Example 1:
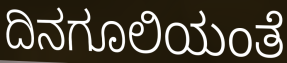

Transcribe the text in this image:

ದಿನಗೂಲಿಯಂತೆ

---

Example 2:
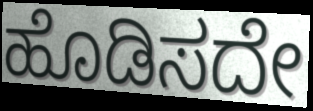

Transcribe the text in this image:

ಹೊಡಿಸದೇ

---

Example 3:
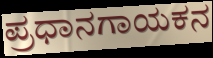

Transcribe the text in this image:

ಪ್ರಧಾನಗಾಯಕನ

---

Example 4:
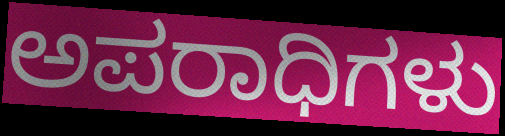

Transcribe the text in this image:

ಅಪರಾಧಿಗಳು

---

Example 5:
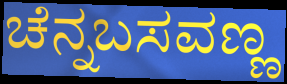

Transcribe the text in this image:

ಚೆನ್ನಬಸವಣ್ಣ